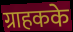
ग्राहकके